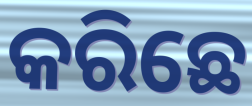
କରିଛେ